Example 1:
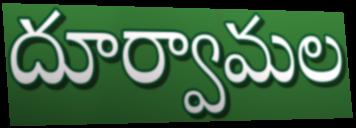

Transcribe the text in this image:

దూర్వామల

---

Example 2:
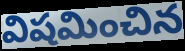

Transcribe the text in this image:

విషమించిన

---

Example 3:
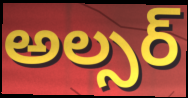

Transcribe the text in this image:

అల్సర్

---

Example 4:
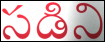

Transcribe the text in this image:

సడిని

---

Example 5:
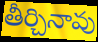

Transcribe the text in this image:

తీర్చినావు